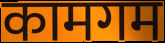
कामगम